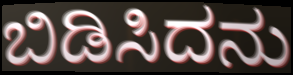
ಬಿಡಿಸಿದನು